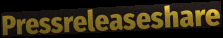
Pressreleaseshare